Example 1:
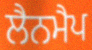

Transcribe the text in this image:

ਲੈਨਮੈਪ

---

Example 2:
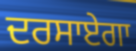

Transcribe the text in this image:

ਦਰਸਾਏਗਾ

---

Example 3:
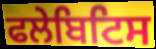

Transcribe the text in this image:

ਫਲੇਬਿਟਿਸ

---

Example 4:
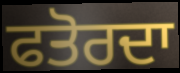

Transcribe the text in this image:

ਫਤੋਰਦਾ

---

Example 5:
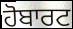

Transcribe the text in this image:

ਹੋਬਾਰਟ